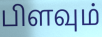
பிளவும்